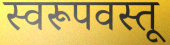
स्वरूपवस्तू